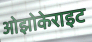
ओझोकेराइट